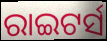
ରାଇଟର୍ସ